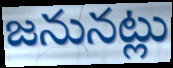
జనునట్లు